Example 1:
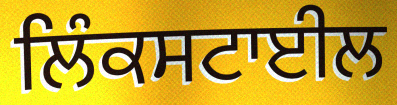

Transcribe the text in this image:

ਲਿੰਕਸਟਾਈਲ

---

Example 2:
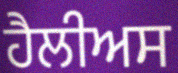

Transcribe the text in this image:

ਹੈਲੀਅਸ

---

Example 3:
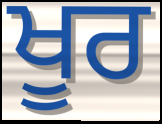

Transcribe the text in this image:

ਖੂਰ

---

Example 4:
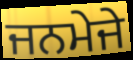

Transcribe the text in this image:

ਜਨਮੇਜੇ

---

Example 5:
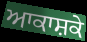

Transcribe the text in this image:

ਆਕਾਸ਼ਕੇ